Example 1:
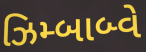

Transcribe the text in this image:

ઝિમ્બાબ્વે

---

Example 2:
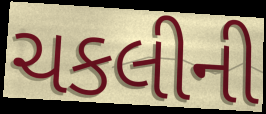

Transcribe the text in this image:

ચકલીની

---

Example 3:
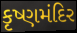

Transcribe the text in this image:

કૃષ્ણમંદિર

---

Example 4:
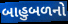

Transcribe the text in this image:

બાહુબળનો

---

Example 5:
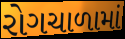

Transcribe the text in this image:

રોગચાળામાં